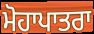
ਮੋਹਾਪਾਤਰਾ